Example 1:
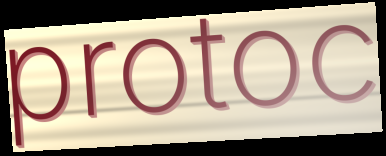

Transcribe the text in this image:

protoc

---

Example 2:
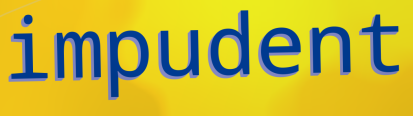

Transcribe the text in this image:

impudent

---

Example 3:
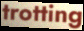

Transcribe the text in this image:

trotting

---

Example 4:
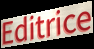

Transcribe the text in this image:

Editrice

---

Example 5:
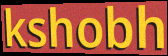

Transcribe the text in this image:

kshobh